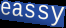
eassy